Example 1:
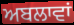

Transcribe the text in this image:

ਅਬਲਾਵਾਂ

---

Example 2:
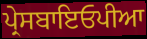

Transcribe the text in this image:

ਪ੍ਰੇਸਬਾਇਓਪੀਆ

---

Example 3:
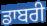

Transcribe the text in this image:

ਡਾਬਰੀ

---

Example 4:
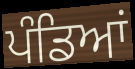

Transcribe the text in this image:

ਪੰਡਿਆਂ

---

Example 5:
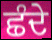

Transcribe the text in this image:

ਛੰਦੇ